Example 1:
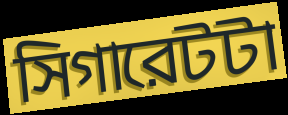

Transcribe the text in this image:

সিগারেটটা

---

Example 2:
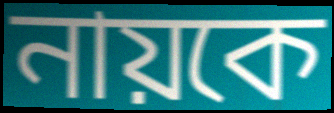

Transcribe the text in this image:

নায়কে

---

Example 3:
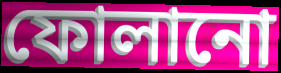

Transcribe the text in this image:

ফোলানো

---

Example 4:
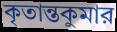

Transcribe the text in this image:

কৃতান্তকুমার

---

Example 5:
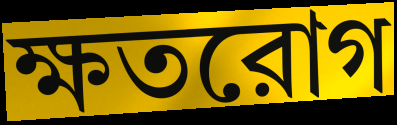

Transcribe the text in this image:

ক্ষতরোগ